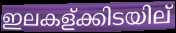
ഇലകള്ക്കിടയില്